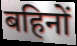
बहिनों